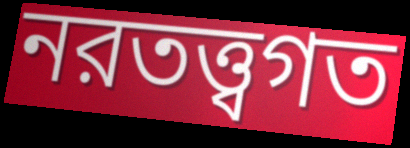
নরতত্ত্বগত